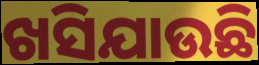
ଖସିଯାଉଛି